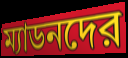
ম্যাডনদের